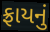
ફ્રાયનું